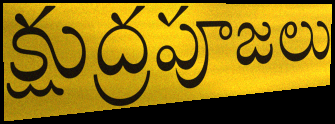
క్షుద్రపూజలు